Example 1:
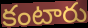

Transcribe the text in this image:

కంటారు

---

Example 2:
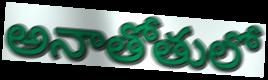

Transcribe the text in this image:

అనాతోతులో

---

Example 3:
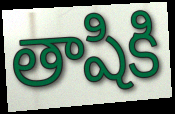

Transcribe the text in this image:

తాషికి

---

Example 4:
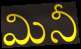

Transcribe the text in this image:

మినీ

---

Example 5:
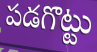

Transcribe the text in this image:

పడగొట్టు